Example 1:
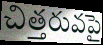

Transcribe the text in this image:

చిత్తరువపై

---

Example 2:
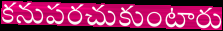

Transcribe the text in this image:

కనుపరచుకుంటారు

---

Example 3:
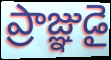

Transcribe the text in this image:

ప్రాజ్ఞుడై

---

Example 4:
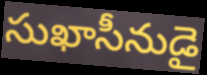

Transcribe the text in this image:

సుఖాసీనుడై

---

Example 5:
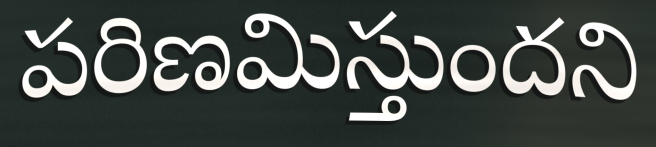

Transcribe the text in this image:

పరిణమిస్తుందని